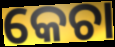
କେଚା